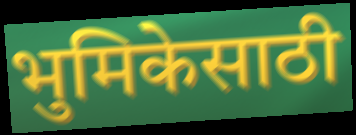
भुमिकेसाठी